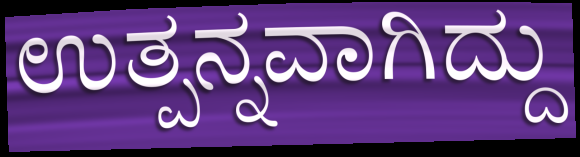
ಉತ್ಪನ್ನವಾಗಿದ್ದು